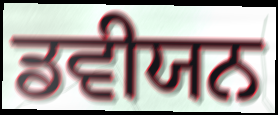
ਡਵੀਯਨ